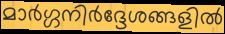
മാർഗ്ഗനിർദ്ദേശങ്ങളിൽ